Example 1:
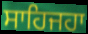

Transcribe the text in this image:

ਸਾਹਿਜਹਾ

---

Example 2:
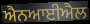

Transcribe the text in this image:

ਐਨਆਈਐਲ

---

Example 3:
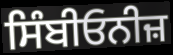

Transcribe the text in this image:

ਸਿੰਬੀਓਨੀਜ਼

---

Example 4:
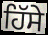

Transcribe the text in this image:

ਹਿੱਸੇ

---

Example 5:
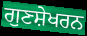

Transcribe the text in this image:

ਗੁਣਸ਼ੇਖਰਨ